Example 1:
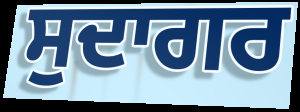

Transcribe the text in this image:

ਸੁਦਾਗਰ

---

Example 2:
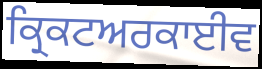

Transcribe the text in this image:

ਕ੍ਰਿਕਟਅਰਕਾਈਵ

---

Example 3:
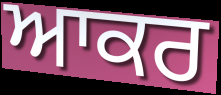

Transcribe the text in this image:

ਆਕਰ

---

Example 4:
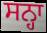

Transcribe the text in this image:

ਸਨ੍ਹਾ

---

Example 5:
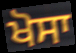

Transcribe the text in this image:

ਖੋਸਾ